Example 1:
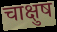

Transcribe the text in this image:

चाक्षुष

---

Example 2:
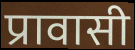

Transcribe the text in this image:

प्रावासी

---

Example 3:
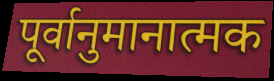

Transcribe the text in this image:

पूर्वानुमानात्मक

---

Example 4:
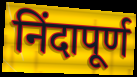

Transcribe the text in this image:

निंदापूर्ण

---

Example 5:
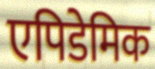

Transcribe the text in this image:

एपिडेमिक